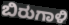
ಬಿರುಗಾಳಿ